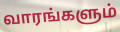
வாரங்களும்